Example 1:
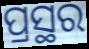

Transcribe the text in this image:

ପ୍ରସ୍ଥର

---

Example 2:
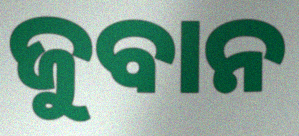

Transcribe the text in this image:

ଜୁବାନ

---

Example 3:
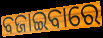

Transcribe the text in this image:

ବଜାଇବାରେ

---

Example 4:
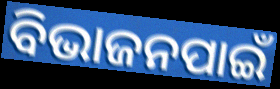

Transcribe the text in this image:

ବିଭାଜନପାଇଁ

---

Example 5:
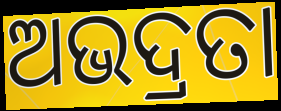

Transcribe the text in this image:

ଅଭଦ୍ରତା